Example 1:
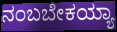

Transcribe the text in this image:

ನಂಬಬೇಕಯ್ಯಾ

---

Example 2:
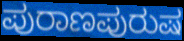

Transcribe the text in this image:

ಪುರಾಣಪುರುಷ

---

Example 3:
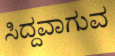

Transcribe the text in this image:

ಸಿದ್ದವಾಗುವ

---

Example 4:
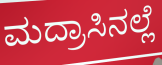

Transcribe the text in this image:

ಮದ್ರಾಸಿನಲ್ಲೆ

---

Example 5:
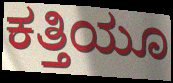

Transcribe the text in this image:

ಕತ್ತಿಯೂ